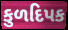
કુળદિપક